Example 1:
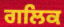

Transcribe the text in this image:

ਗਲਿਕ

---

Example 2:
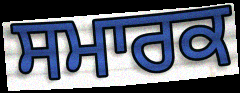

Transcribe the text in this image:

ਸਮਾਰਕ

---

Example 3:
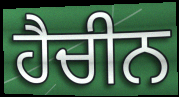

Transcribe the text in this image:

ਹੈਚੀਨ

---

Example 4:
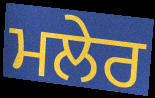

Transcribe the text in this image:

ਮਲੇਰ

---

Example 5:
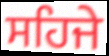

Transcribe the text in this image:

ਸਹਿਜੇ